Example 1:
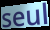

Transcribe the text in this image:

seul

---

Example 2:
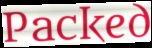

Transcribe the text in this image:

Packed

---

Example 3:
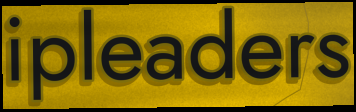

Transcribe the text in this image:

ipleaders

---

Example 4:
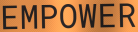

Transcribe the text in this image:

EMPOWER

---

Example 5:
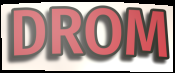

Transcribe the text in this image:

DROM